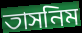
তাসনিম